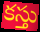
కస్తు